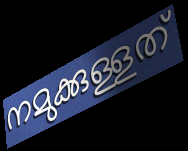
നമുക്കുള്ളത്